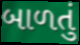
બાળતું